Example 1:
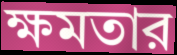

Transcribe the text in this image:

ক্ষমতার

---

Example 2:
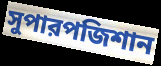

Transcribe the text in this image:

সুপারপজিশান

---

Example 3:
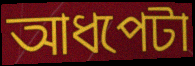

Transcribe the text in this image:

আধপেটা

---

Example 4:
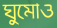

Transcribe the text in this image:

ঘুমোও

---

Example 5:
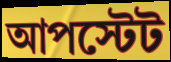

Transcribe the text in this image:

আপস্টেট